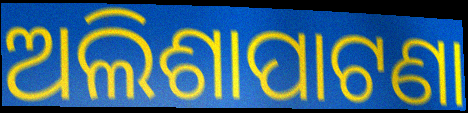
ଅଲିଶାପାଟଣା